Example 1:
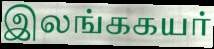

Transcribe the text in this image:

இலங்ககயர்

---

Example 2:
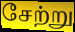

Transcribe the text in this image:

சேற்று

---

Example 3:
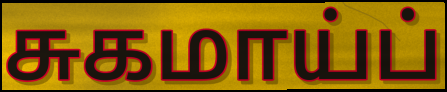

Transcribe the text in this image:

சுகமாய்ப்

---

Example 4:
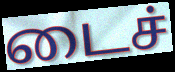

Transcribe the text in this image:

டைச்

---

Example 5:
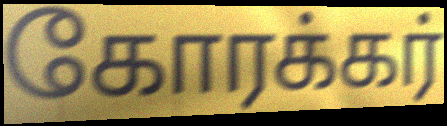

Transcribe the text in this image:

கோரக்கர்